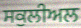
ਸਕੁਲੀਅਲ